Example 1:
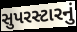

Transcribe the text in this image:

સુપરસ્ટારનું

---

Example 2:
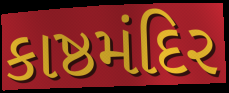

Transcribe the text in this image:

કાષ્ઠમંદિર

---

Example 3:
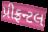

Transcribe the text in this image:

પ્રીફ્રન્ટલ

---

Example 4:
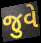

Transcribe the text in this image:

જુવે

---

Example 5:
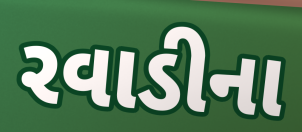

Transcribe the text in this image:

રવાડીના